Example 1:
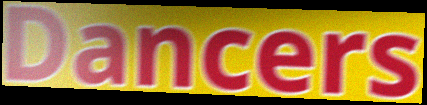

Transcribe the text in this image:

Dancers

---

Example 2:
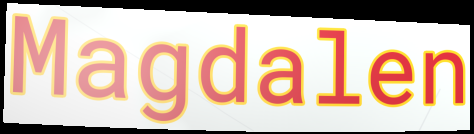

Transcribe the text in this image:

Magdalen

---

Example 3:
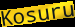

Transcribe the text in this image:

Kosuru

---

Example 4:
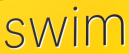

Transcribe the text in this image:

swim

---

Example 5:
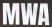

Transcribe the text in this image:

MWA